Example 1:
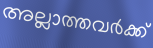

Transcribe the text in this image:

അല്ലാത്തവർക്ക്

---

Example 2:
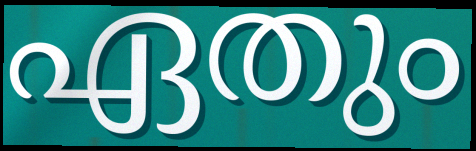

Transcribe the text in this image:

ഏതും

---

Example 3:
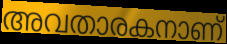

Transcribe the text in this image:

അവതാരകനാണ്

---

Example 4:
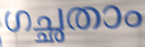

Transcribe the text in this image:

ഗച്ഛതാം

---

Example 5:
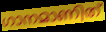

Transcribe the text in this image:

ഗാനമാണിത്